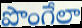
పొంగేలా